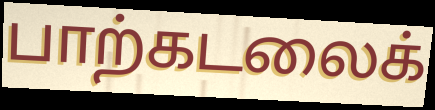
பாற்கடலைக்